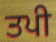
ਤਪੀ